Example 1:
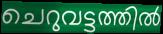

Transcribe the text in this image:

ചെറുവട്ടത്തിൽ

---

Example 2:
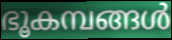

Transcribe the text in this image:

ഭൂകമ്പങ്ങൾ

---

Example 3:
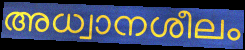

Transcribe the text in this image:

അധ്വാനശീലം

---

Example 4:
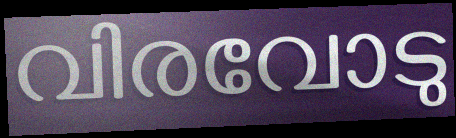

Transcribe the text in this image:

വിരവോടു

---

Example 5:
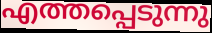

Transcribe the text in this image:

എത്തപ്പെടുന്നു